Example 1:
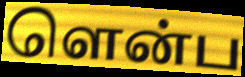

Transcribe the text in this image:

ளென்ப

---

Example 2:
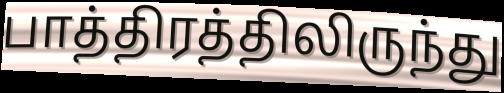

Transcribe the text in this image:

பாத்திரத்திலிருந்து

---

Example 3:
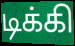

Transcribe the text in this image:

டிக்கி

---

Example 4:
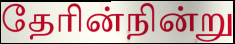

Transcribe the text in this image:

தேரின்நின்று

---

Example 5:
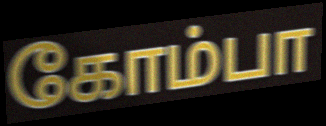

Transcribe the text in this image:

கோம்பா